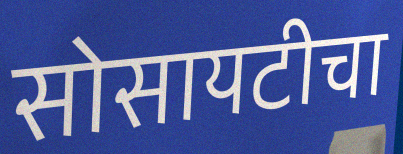
सोसायटीचा